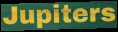
Jupiters